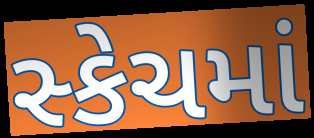
સ્કેચમાં